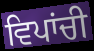
ਵਿਪਾਂਚੀ